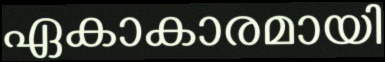
ഏകാകാരമായി